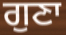
ਗੁਣਾ